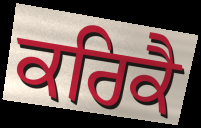
ਕਰਿਕੈ